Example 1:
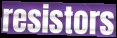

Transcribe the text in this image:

resistors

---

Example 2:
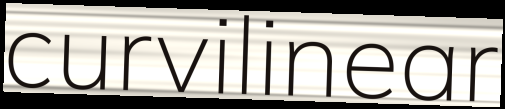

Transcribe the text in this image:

curvilinear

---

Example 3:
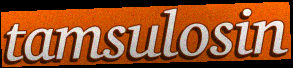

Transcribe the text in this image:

tamsulosin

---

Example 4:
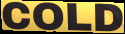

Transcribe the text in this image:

COLD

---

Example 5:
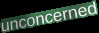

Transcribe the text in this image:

unconcerned